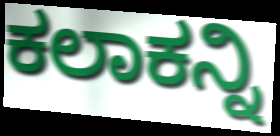
ಕಲಾಕನ್ನಿ